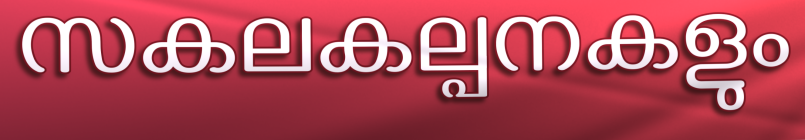
സകലകല്പനകളും